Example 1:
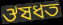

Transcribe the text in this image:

ঔষধত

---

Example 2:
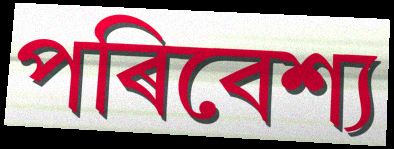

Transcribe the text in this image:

পৰিবেশ্য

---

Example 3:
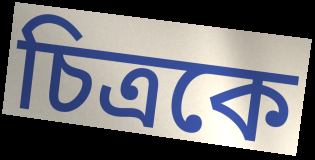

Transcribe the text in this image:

চিত্ৰকে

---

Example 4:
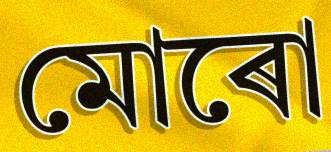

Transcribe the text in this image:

মোৰো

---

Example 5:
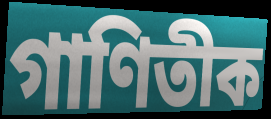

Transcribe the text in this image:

গাণিতীক